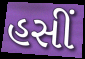
હસીં